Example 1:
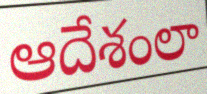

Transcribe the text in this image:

ఆదేశంలా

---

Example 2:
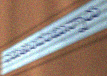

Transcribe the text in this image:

పడుతుందంటున్నారు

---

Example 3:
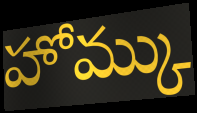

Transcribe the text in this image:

హోమ్కు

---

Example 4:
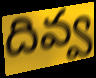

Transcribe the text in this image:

దివ్వ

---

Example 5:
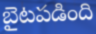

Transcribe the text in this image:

బైటపడింది